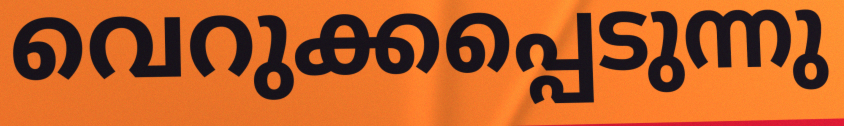
വെറുക്കപ്പെടുന്നു